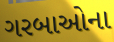
ગરબાઓના